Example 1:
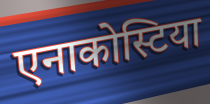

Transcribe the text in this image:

एनाकोस्टिया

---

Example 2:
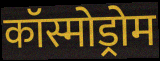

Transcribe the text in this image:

कॉस्मोड्रोम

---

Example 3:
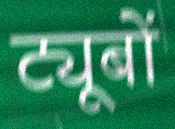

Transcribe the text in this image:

ट्यूबों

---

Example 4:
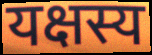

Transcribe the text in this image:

यक्षस्य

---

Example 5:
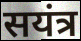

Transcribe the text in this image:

सयंत्र